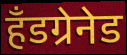
हँडग्रेनेड